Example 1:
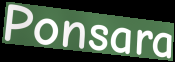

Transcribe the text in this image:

Ponsara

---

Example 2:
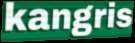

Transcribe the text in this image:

kangris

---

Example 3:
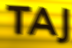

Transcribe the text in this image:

TAJ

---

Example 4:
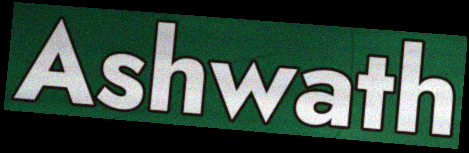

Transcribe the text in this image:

Ashwath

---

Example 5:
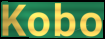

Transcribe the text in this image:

Kobo